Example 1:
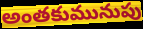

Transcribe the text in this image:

అంతకుమునుపు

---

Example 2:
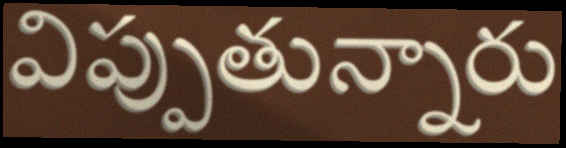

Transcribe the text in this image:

విప్పుతున్నారు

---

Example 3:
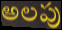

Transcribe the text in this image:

అలపు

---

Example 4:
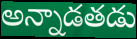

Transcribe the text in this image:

అన్నాడతడు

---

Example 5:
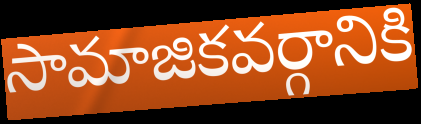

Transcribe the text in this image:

సామాజికవర్గానికి